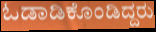
ಓಡಾಡಿಕೊಂಡಿದ್ದರು